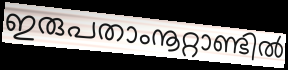
ഇരുപതാംനൂറ്റാണ്ടിൽ